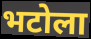
भटोला